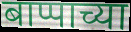
बाप्पाच्या